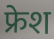
फ्रेश